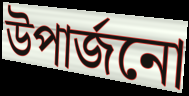
উপাৰ্জনো